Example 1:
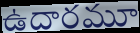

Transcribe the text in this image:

ఉదారమూ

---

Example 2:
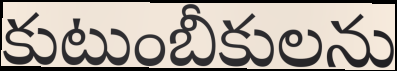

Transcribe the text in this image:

కుటుంబీకులను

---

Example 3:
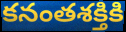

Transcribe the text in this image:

కనంతశక్తికి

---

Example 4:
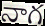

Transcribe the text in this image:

నాగ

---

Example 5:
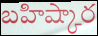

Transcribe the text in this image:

బహిష్కార